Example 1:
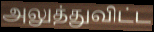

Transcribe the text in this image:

அலுத்துவிட்ட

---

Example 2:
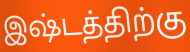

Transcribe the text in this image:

இஷ்டத்திற்கு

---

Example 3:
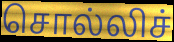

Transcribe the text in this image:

சொல்லிச்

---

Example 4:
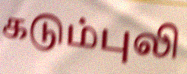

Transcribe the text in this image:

கடும்புலி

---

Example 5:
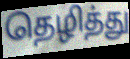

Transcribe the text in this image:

தெழித்து